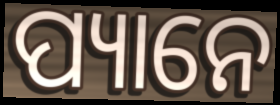
ପ୍ୟାନେ